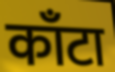
काँटा